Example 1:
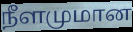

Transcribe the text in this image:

நீளமுமான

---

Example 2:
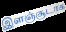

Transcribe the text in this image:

இளஞ்சூடாக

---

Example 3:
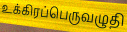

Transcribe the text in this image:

உக்கிரப்பெருவழுதி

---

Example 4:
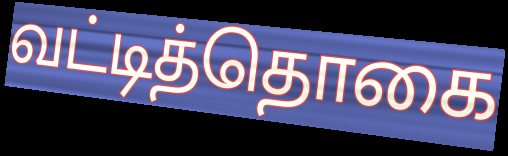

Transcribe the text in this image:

வட்டித்தொகை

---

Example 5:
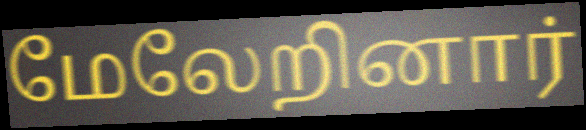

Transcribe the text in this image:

மேலேறினார்